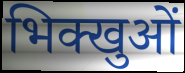
भिक्खुओं